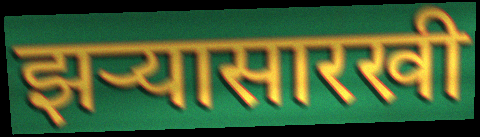
झर्‍यासारखी